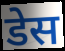
डेस